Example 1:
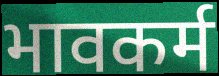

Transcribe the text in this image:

भावकर्म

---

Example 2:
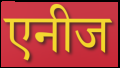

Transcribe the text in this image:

एनीज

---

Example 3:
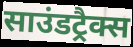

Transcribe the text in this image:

साउंडट्रैक्स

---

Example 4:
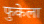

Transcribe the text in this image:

फुकेला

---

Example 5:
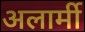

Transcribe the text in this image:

अलार्मी